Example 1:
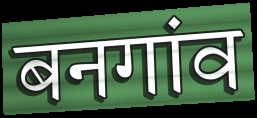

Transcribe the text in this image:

बनगांव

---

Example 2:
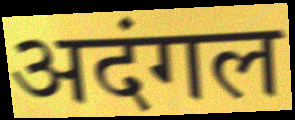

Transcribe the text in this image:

अदंगल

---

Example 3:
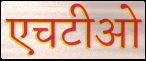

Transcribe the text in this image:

एचटीओ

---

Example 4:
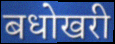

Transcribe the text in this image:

बधोखरी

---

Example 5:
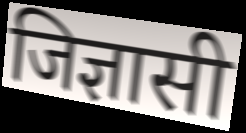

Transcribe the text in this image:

जिज्ञासी